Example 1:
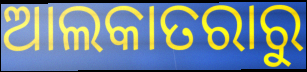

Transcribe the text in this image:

ଆଲକାତରାରୁ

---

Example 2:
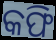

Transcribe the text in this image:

କଫି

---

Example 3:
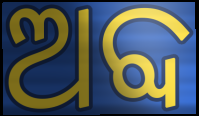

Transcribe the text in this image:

ଅବ୍ଦ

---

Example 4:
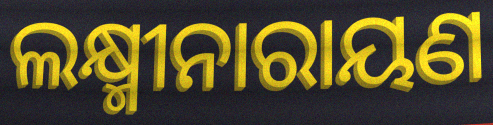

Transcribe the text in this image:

ଲକ୍ଷ୍ମୀନାରାୟଣ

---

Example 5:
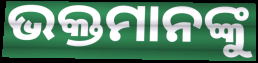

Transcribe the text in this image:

ଭକ୍ତମାନଙ୍କୁ